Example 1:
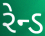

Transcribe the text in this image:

રેન્ડ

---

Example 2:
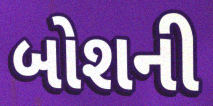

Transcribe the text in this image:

બોશની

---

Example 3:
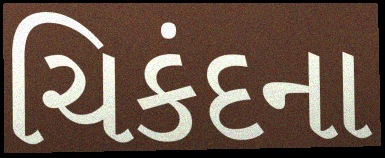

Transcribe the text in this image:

ચિકંદના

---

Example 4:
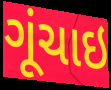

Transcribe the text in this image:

ગૂંચાઇ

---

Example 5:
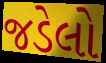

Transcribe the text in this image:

જડેલો